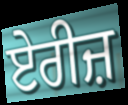
ਏਰੀਜ਼